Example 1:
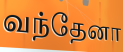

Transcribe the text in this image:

வந்தேனா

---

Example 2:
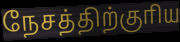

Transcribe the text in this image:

நேசத்திற்குரிய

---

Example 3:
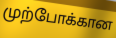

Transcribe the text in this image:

முற்போக்கான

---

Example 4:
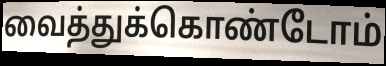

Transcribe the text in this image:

வைத்துக்கொண்டோம்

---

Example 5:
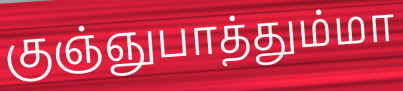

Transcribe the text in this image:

குஞ்ஞுபாத்தும்மா